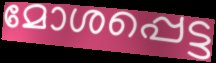
മോശപ്പെട്ട